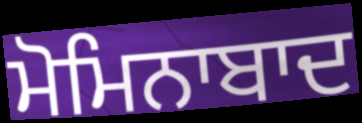
ਮੋਮਿਨਾਬਾਦ